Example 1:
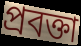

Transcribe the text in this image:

প্ৰবক্তা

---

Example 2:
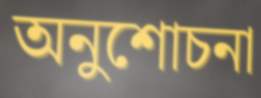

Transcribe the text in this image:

অনুশোচনা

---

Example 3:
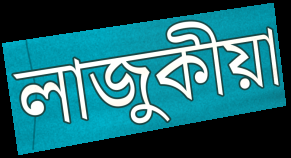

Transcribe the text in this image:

লাজুকীয়া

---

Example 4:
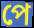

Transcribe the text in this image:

পে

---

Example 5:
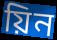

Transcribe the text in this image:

য়িন